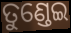
ତୁଣ୍ଡେଇ